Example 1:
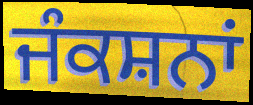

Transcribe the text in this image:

ਜੰਕਸ਼ਨਾਂ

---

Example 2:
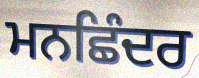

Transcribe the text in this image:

ਮਨਛਿੰਦਰ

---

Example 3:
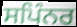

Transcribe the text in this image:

ਸਪਿੰਨਰ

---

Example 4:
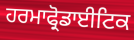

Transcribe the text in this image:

ਹਰਮਾਫ੍ਰੋਡਾਈਟਿਕ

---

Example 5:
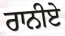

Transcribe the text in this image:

ਰਾਨੀਏ